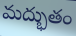
మద్భుతం